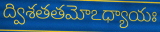
ద్విశతతమోఽధ్యాయః